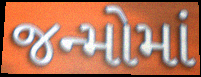
જન્મોમાં